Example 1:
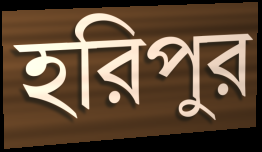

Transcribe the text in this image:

হরিপুর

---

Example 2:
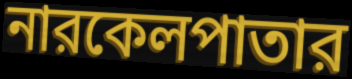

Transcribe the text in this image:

নারকেলপাতার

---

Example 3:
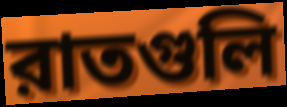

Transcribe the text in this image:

রাতগুলি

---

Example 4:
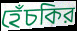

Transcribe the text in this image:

হেঁচকির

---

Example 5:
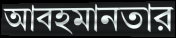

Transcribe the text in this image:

আবহমানতার